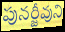
పునర్జీవుని